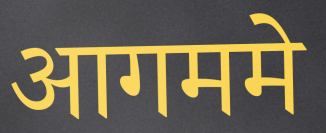
आगममे